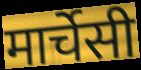
मार्चेसी